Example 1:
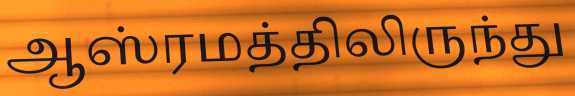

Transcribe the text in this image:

ஆஸ்ரமத்திலிருந்து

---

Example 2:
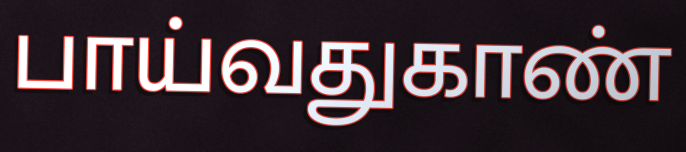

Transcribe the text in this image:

பாய்வதுகாண்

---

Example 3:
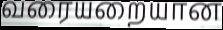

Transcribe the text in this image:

வரையறையான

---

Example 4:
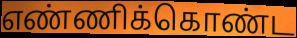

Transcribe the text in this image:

எண்ணிக்கொண்ட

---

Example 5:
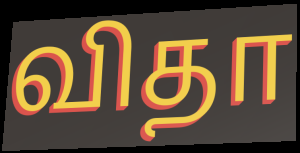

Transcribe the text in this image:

விதா